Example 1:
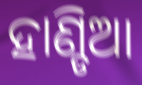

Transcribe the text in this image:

ହାଣ୍ଡିଆ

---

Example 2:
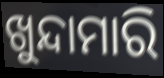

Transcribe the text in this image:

ଖୁନ୍ଦାମାରି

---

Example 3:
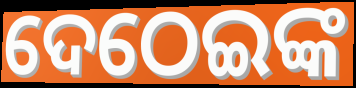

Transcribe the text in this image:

ଦେଠେଇଙ୍କ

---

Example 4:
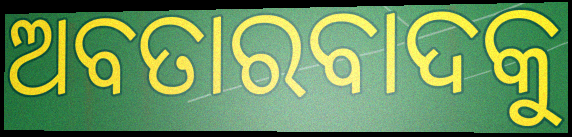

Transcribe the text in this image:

ଅବତାରବାଦକୁ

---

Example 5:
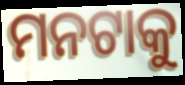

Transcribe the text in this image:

ମନଟାକୁ